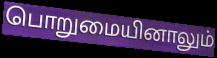
பொறுமையினாலும்